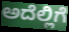
ಅದೆಲ್ಲಿಗೆ